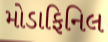
મોડાફિનિલ